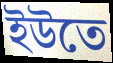
ইউতে